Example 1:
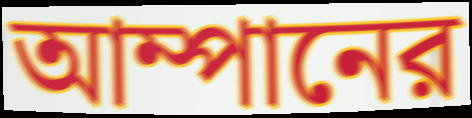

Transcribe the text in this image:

আম্পানের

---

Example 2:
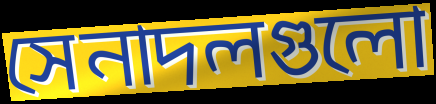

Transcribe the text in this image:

সেনাদলগুলো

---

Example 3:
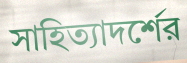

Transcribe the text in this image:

সাহিত্যাদর্শের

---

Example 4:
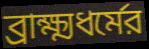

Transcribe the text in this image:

ব্রাক্ষ্মধর্মের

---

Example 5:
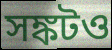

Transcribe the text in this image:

সঙ্কটও